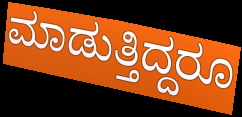
ಮಾಡುತ್ತಿದ್ದರೂ